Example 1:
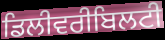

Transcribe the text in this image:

ਡਿਲੀਵਰੀਬਿਲਟੀ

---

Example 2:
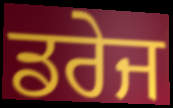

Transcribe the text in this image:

ਡਰੇਜ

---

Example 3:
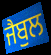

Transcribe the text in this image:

ਜੈਬੁਲ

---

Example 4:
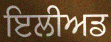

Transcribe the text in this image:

ਇਲੀਅਡ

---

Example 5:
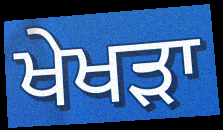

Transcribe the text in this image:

ਖੇਖੜਾ